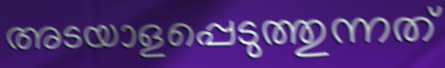
അടയാളപ്പെടുത്തുന്നത്